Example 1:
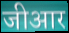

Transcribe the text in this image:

जीआर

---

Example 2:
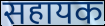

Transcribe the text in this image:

सहायक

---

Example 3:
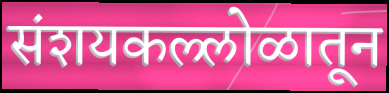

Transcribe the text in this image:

संशयकल्लोळातून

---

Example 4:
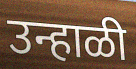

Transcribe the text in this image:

उन्हाळी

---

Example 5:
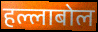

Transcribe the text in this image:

हल्लाबोल